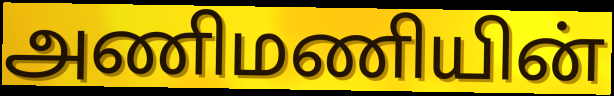
அணிமணியின்